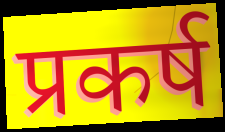
प्रकर्ष